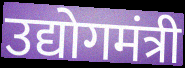
उद्योगमंत्री